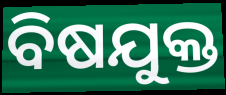
ବିଷଯୁକ୍ତ